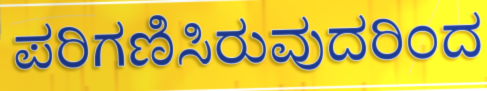
ಪರಿಗಣಿಸಿರುವುದರಿಂದ